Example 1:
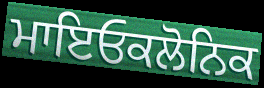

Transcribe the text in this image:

ਮਾਇਓਕਲੋਨਿਕ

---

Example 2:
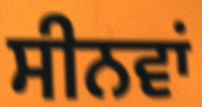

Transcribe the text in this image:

ਸੀਨਵਾਂ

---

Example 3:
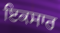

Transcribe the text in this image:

ਇਕਸਾਰ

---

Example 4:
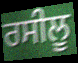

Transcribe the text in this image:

ਰਸੀਲੂ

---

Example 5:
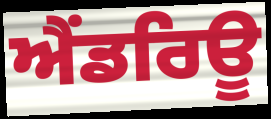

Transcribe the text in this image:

ਐਂਡਰਿਊ